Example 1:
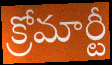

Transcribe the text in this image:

క్రోమార్టీ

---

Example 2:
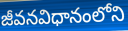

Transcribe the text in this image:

జీవనవిధానంలోని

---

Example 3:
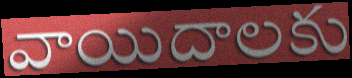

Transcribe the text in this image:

వాయిదాలకు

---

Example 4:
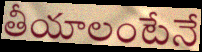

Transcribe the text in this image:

తీయాలంటేనే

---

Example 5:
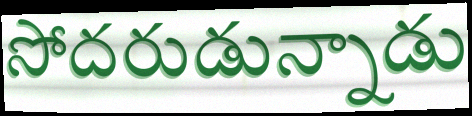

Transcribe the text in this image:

సోదరుడున్నాడు